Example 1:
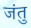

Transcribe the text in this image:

जंतु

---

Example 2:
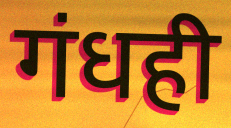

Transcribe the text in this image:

गंधही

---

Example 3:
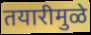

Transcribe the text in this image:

तयारीमुळे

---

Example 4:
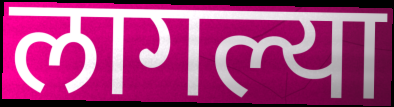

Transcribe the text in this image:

लागल्‍या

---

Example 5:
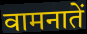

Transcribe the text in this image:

वामनातें